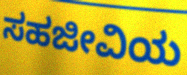
ಸಹಜೀವಿಯ